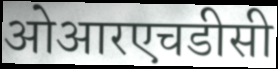
ओआरएचडीसी